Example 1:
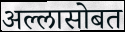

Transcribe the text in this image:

अल्लासोबत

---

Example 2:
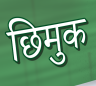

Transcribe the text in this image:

छिमुक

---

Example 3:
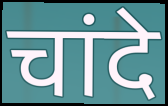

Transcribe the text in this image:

चांदे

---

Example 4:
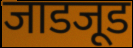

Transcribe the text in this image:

जाडजूड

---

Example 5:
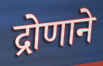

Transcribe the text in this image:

द्रोणाने